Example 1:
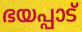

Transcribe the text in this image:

ഭയപ്പാട്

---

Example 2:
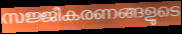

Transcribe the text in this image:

സജ്ജീകരണങ്ങളുടെ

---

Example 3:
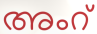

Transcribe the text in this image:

അംറ്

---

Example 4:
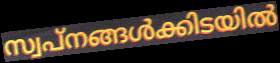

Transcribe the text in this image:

സ്വപ്നങ്ങൾക്കിടയിൽ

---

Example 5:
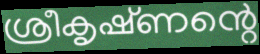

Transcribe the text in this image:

ശ്രീകൃഷ്‌ണന്റെ